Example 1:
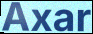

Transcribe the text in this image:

Axar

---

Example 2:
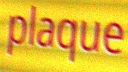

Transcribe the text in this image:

plaque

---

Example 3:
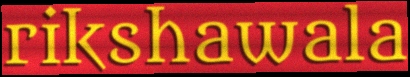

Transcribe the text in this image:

rikshawala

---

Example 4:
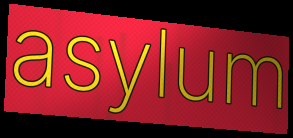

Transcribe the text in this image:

asylum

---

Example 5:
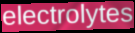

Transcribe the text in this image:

electrolytes